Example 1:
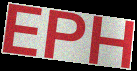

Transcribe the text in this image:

EPH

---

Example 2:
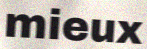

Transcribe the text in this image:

mieux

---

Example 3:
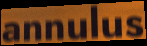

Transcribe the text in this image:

annulus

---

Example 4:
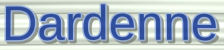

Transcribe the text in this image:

Dardenne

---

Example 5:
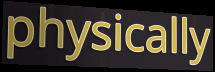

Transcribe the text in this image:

physically